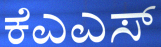
ಕೆಎಎಸ್